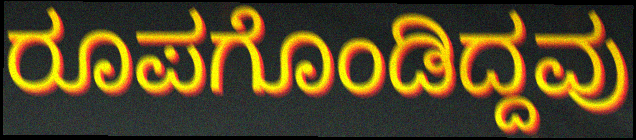
ರೂಪಗೊಂಡಿದ್ದವು